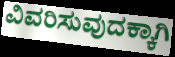
ವಿವರಿಸುವುದಕ್ಕಾಗಿ